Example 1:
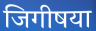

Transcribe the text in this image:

जिगीषया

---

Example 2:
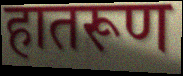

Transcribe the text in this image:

हातरूण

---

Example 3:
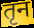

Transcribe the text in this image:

तृन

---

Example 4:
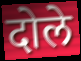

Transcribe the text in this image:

दोले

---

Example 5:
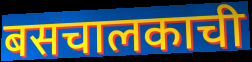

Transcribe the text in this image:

बसचालकाची